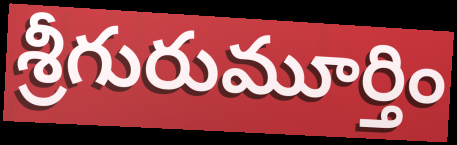
శ్రీగురుమూర్తిం